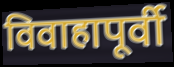
विवाहापूर्वी